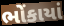
ભોંકાયાં